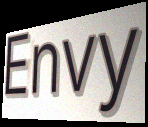
Envy